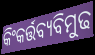
କିଂକର୍ତ୍ତବ୍ଯବିମୁଢ